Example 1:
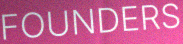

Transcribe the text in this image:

FOUNDERS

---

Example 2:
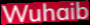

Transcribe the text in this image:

Wuhaib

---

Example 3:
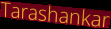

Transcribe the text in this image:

Tarashankar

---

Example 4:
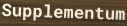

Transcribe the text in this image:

Supplementum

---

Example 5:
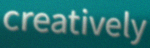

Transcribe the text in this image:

creatively